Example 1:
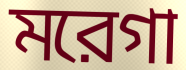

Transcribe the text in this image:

মরেগা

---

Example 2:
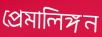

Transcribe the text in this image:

প্রেমালিঙ্গন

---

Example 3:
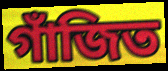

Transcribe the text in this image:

গাঁজিত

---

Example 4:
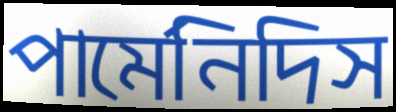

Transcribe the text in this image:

পার্মেনিদিস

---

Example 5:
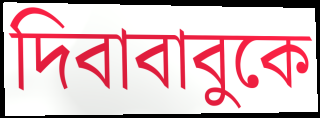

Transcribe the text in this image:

দিবাবাবুকে